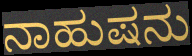
ನಾಹುಷನು